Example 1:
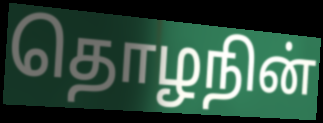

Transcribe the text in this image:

தொழநின்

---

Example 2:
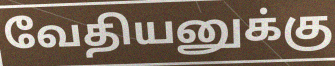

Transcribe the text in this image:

வேதியனுக்கு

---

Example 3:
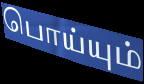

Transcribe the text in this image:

பொய்யும்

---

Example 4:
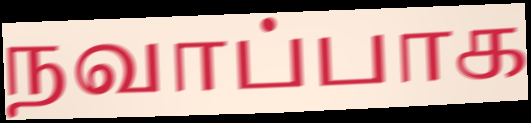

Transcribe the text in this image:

நவாப்பாக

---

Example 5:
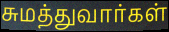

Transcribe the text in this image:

சுமத்துவார்கள்